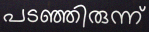
പടഞ്ഞിരുന്ന്